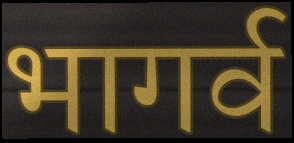
भागर्व